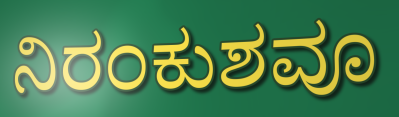
ನಿರಂಕುಶವೂ